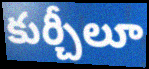
కుర్చీలూ